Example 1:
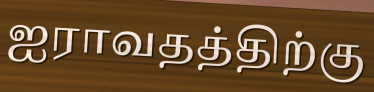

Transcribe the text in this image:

ஐராவதத்திற்கு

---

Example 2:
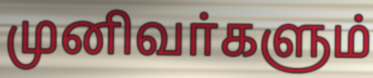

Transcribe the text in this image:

முனிவர்களும்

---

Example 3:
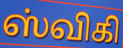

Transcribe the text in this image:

ஸ்விகி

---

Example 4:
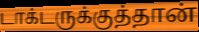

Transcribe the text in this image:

டாக்டருக்குத்தான்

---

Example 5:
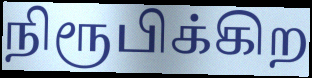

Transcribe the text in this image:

நிரூபிக்கிற